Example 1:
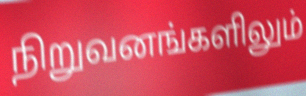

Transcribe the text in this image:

நிறுவனங்களிலும்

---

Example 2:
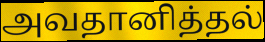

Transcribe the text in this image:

அவதானித்தல்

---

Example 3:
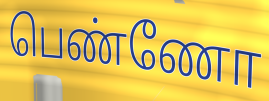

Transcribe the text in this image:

பெண்ணோ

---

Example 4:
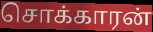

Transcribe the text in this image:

சொக்காரன்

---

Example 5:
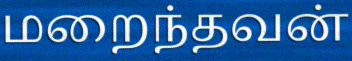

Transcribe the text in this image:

மறைந்தவன்